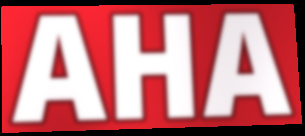
AHA